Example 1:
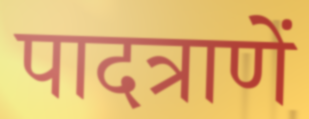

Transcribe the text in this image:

पादत्राणें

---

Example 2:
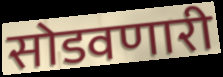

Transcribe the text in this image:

सोडवणारी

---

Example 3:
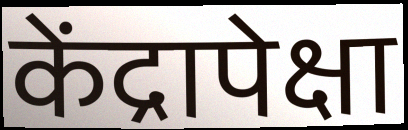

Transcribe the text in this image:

केंद्रापेक्षा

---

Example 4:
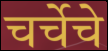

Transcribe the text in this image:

चर्चेचे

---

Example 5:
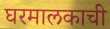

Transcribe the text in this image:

घरमालकाची